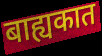
बाह्यकात